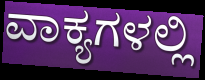
ವಾಕ್ಯಗಳಲ್ಲಿ